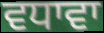
ਵਧਾਵਾ